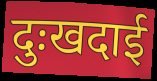
दुःखदाई